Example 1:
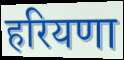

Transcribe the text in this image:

हरियणा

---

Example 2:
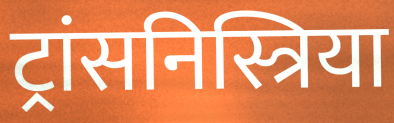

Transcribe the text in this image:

ट्रांसनिस्त्रिया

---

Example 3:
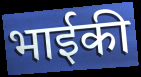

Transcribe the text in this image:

भाईकी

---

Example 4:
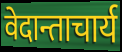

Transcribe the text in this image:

वेदान्ताचार्य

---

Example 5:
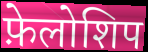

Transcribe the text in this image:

फ़ेलोशिप